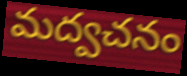
మద్వచనం